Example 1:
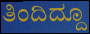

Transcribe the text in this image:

ತಿಂದಿದ್ದೂ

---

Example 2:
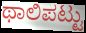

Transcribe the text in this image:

ಥಾಲಿಪಟ್ಟು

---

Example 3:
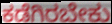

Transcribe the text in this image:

ಕಡೆಗಿರಬೇಕು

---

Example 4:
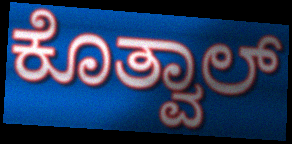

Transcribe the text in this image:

ಕೊತ್ವಾಲ್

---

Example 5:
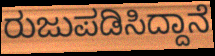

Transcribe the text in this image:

ರುಜುಪಡಿಸಿದ್ದಾನೆ